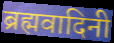
ब्रह्मवादिनी